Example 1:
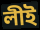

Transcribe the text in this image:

লীই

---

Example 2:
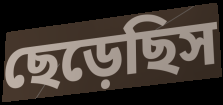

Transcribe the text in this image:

ছেড়েছিস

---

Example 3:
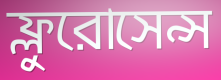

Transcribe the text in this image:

ফ্লুরোসেন্স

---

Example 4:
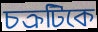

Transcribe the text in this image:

চক্রটিকে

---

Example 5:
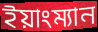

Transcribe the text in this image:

ইয়াংম্যান